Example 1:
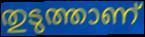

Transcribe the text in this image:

തുടുത്താണ്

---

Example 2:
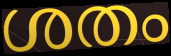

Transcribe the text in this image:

ശതം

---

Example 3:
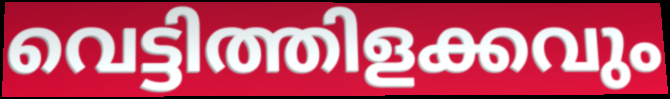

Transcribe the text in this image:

വെട്ടിത്തിളക്കവും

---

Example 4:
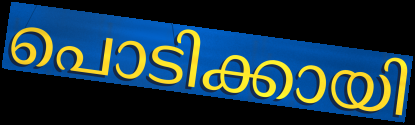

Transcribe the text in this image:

പൊടിക്കായി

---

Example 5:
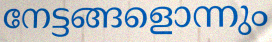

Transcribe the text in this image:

നേട്ടങ്ങളൊന്നും